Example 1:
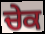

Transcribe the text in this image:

ਚੇਕ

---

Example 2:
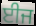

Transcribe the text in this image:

ਈਜ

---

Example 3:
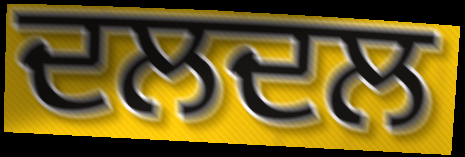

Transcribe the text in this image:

ਦਲਦਲ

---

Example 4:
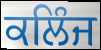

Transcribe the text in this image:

ਕਲਿੰਜ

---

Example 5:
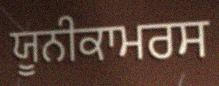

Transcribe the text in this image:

ਯੂਨੀਕਾਮਰਸ